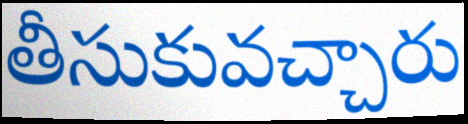
తీసుకువచ్చారు